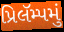
પ્રિલૅમ્પમું